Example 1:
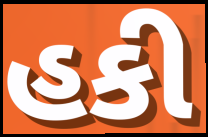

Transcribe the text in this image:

હકી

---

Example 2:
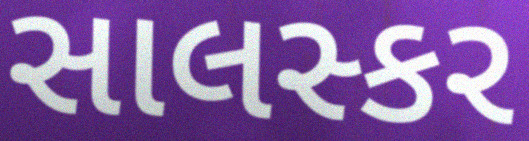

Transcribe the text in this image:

સાલસ્કર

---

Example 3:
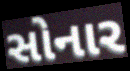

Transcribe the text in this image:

સોનાર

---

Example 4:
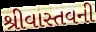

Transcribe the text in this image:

શ્રીવાસ્તવની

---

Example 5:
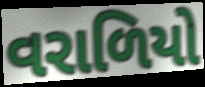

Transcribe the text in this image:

વરાળિયો